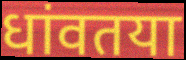
धांवतया